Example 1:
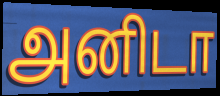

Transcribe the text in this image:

அனிடா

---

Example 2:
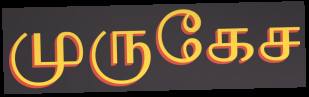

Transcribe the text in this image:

முருகேச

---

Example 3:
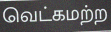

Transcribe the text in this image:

வெட்கமற்ற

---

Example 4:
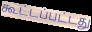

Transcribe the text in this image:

கூட்டப்பட்டது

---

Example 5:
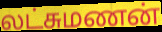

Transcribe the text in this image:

லட்சுமணன்